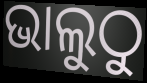
ଭାଲୁଠୁ